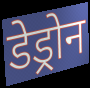
डेड्रोन